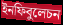
ইনফিবুলেচন